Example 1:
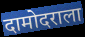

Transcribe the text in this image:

दामोदराला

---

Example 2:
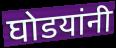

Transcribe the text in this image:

घोडयांनी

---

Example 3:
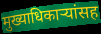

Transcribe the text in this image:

मुख्याधिकाऱ्यांसह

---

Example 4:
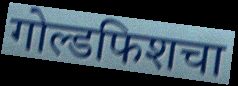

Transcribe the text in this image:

गोल्डफिशचा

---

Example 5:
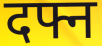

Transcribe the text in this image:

दफ्न